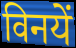
विनयें